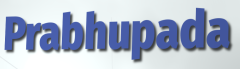
Prabhupada